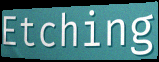
Etching